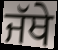
ਜੱਥੇ